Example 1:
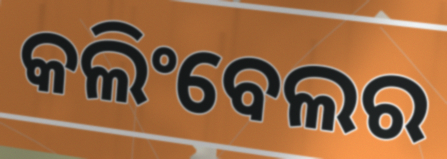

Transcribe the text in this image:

କଲିଂବେଲର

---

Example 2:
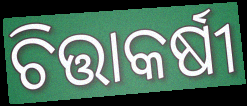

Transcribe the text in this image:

ଚିତ୍ତାକର୍ଷୀ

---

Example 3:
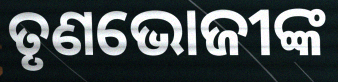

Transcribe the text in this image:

ତୃଣଭୋଜୀଙ୍କ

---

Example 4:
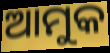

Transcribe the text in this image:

ଆମୁକ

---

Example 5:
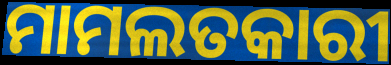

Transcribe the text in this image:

ମାମଲତକାରୀ